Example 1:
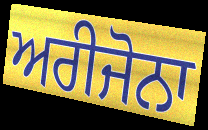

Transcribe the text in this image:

ਅਰੀਜੋਨਾ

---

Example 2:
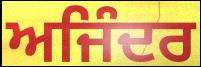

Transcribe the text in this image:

ਅਜਿੰਦਰ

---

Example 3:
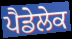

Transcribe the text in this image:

ਪੈਡੇਲੇਕ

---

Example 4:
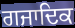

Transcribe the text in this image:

ਗਜਾਦਿਕ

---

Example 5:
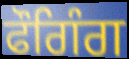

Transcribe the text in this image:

ਫੌਗਿੰਗ